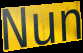
Nun